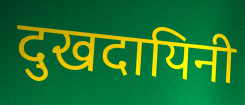
दुखदायिनी